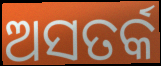
ଅସତର୍କ